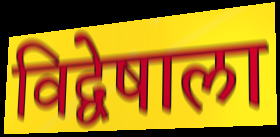
विद्वेषाला